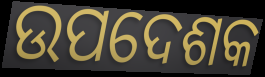
ଉପଦେଶକ